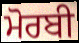
ਮੋਰਬੀ